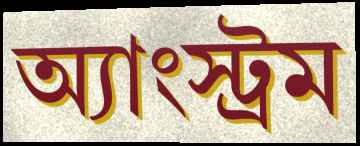
অ্যাংস্ট্রম